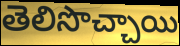
తెలిసొచ్చాయి